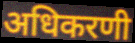
अधिकरणी